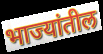
भाज्यांतील